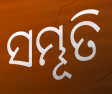
ସମ୍ଭୂତି